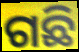
ଗଛି